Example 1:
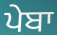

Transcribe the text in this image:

ਪੇਬਾ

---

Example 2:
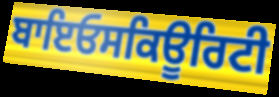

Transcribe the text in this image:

ਬਾਇਓਸਕਿਊਰਿਟੀ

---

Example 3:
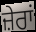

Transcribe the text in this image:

ਜ਼ੇਰਾਂ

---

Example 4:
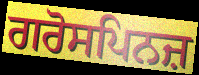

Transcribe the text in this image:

ਗਰੋਸਪਿਨਜ਼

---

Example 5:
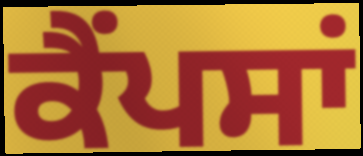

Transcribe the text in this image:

ਕੈਂਪਸਾਂ